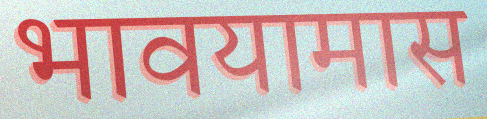
भावयामास